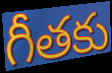
గీతకు